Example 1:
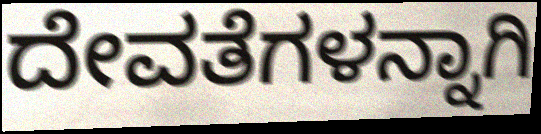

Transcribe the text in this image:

ದೇವತೆಗಳನ್ನಾಗಿ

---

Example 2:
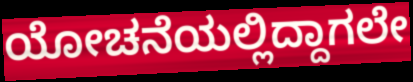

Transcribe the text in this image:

ಯೋಚನೆಯಲ್ಲಿದ್ದಾಗಲೇ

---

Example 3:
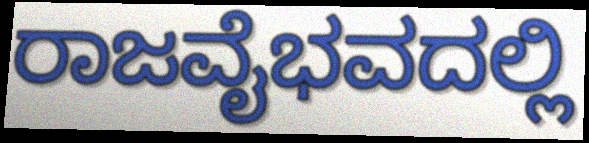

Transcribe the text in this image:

ರಾಜವೈಭವದಲ್ಲಿ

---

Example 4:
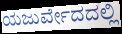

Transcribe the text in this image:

ಯಜುರ್ವೇದದಲ್ಲಿ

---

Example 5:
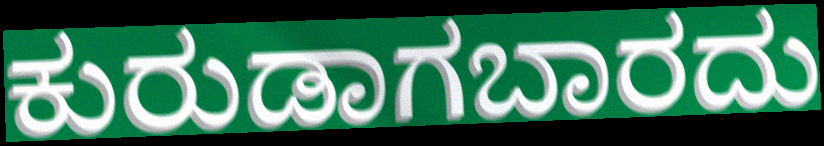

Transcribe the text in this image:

ಕುರುಡಾಗಬಾರದು